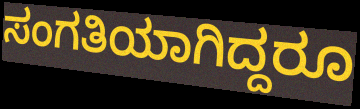
ಸಂಗತಿಯಾಗಿದ್ದರೂ